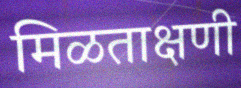
मिळताक्षणी